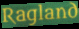
Ragland